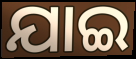
ଯାଇ